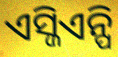
ଏସ୍ଜିଏନ୍ପି